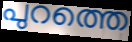
പുറത്തെ